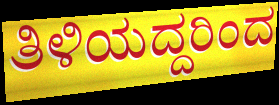
ತಿಳಿಯದ್ದರಿಂದ